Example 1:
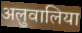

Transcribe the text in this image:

अलुवालिया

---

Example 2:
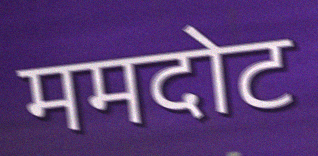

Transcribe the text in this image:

ममदोट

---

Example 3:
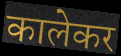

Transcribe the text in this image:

कालेकर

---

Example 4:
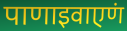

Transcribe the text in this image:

पाणाइवाएणं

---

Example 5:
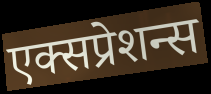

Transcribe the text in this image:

एक्सप्रेशन्स